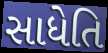
સાધેતિ